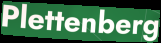
Plettenberg